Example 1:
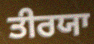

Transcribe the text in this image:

ਤੀਰਯਾ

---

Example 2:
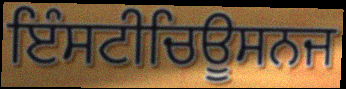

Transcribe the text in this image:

ਇੰਸਟੀਚਿਊਸਨਜ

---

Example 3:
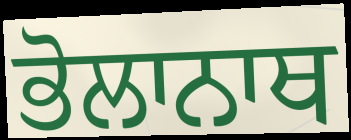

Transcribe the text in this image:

ਭੋਲਾਨਾਥ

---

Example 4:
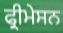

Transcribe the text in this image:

ਫ੍ਰੀਮੇਸਨ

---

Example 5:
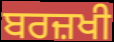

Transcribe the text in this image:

ਬਰਜ਼ਖੀ